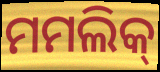
ମମଲିକ୍